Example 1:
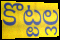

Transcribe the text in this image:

కొట్టల్ల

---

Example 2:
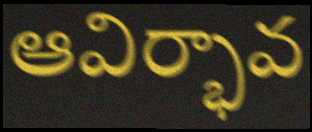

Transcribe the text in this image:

ఆవిర్భావ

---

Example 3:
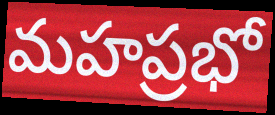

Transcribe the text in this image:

మహప్రభో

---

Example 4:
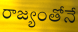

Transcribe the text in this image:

రాజ్యంతోనే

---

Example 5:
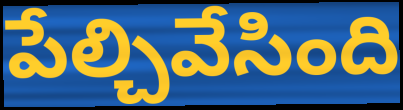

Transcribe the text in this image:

పేల్చివేసింది